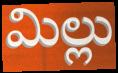
మిల్లు